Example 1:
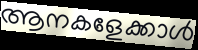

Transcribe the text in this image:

ആനകളേക്കാൾ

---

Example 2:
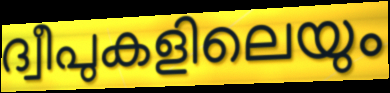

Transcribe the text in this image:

ദ്വീപുകളിലെയും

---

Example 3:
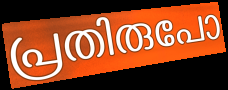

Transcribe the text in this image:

പ്രതിരുപോ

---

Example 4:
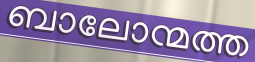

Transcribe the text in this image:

ബാലോന്മത്ത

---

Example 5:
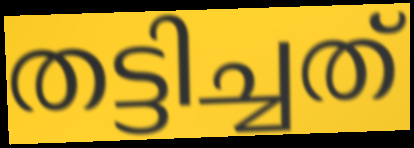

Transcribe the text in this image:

തട്ടിച്ചത്